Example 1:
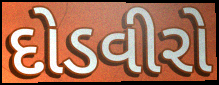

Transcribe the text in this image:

દોડવીરો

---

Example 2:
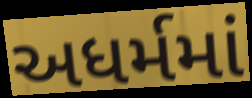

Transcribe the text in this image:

અધર્મમાં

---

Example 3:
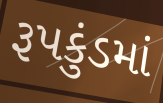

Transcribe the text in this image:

રૂપકુંડમાં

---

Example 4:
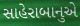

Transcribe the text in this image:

સાહેરાબાનુએ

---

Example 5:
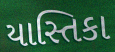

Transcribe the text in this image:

યાસ્તિકા